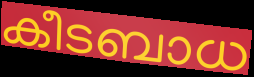
കീടബാധ